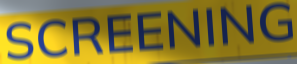
SCREENING